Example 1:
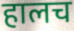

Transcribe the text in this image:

हालच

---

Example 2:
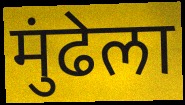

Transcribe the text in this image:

मुंढेला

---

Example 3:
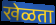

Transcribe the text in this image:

खेळता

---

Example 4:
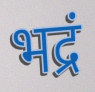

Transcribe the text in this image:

भद्रं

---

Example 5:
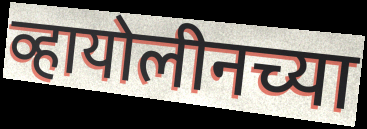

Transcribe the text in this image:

व्हायोलीनच्या